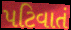
પટિવાતં